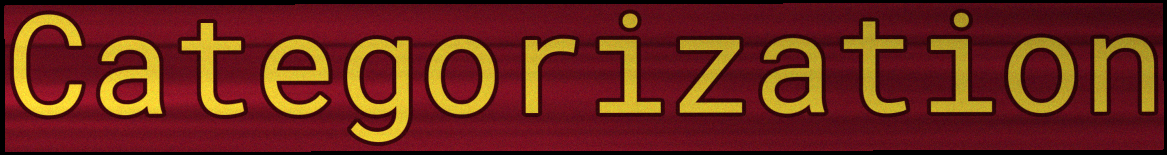
Categorization